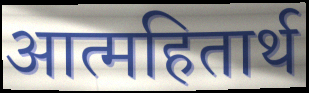
आत्महितार्थ